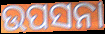
ଉପସନା